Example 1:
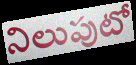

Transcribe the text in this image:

నిలుపుటో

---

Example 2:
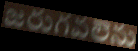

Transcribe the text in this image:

జరుగవలెను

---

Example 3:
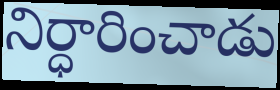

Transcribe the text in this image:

నిర్ధారించాడు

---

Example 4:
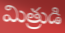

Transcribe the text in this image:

మిత్రుడి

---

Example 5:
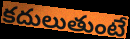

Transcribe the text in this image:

కదులుతుంటే